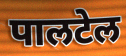
पालटेल